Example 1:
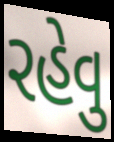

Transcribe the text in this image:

રહેવુ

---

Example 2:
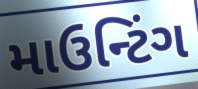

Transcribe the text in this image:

માઉન્ટિંગ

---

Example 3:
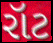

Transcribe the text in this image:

રૉટ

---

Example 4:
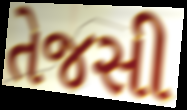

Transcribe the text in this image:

તેજસી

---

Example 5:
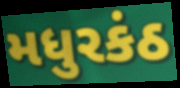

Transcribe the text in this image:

મધુરકંઠ